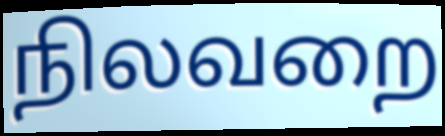
நிலவறை